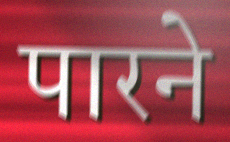
पारने